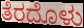
ತೆರದೊಳು